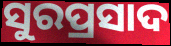
ସୁରପ୍ରସାଦ